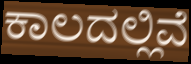
ಕಾಲದಲ್ಲಿವೆ